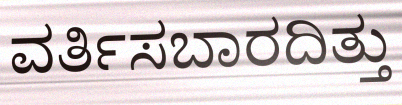
ವರ್ತಿಸಬಾರದಿತ್ತು